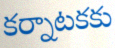
కర్నాటకకు